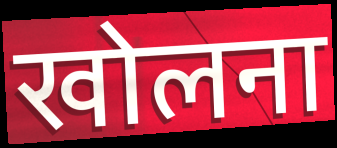
खोलना